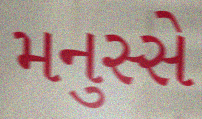
મનુસ્સે